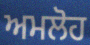
ਅਮਲੋਹ